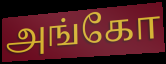
அங்கோ